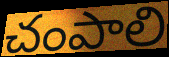
చంపాలి